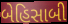
બેહિસાબી